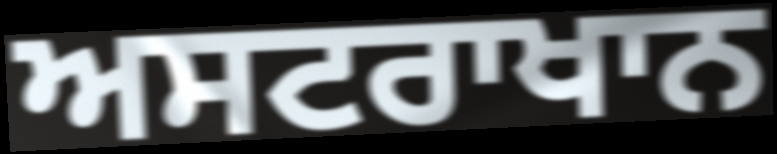
ਅਸਟਰਾਖਾਨ